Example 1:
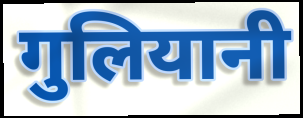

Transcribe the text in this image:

गुलियानी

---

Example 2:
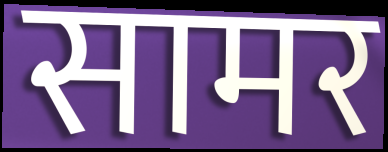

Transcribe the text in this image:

सामर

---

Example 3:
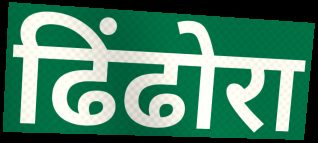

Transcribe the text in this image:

ढिंढोरा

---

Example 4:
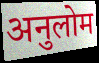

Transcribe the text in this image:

अनुलोम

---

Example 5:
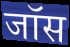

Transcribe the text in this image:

जॉस